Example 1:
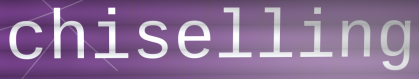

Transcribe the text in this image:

chiselling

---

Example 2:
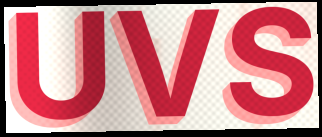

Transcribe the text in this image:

UVS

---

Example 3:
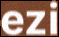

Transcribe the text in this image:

ezi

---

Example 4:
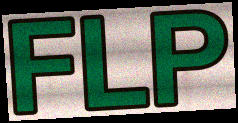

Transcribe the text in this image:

FLP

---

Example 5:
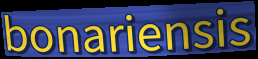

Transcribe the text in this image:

bonariensis